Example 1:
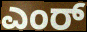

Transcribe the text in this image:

ಎಂರ್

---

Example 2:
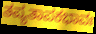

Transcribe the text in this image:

ತಪ್ಯತಾಪಕಭಾವಃ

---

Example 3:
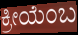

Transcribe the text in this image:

ಕ್ರೀಯೆಂಬ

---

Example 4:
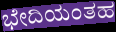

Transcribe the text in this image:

ಭೇದಿಯಂತಹ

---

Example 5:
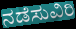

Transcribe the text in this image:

ನಡೆಸುವಿರಿ